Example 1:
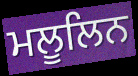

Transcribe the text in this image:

ਮਲੂਲਿਨ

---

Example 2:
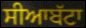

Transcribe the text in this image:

ਸੀਆਬੱਟਾ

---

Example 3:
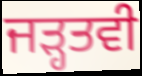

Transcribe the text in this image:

ਜੜ੍ਹਤਵੀ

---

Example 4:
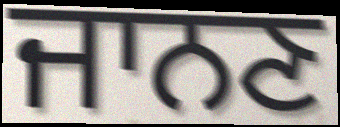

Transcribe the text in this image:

ਜਾਨਣ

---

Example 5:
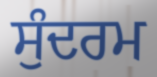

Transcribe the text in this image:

ਸੁੰਦਰਮ